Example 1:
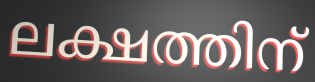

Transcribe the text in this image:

ലക്ഷത്തിന്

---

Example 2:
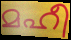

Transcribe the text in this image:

മഹീ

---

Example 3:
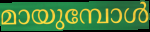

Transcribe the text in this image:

മായുമ്പോൾ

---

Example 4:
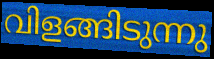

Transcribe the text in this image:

വിളങ്ങിടുന്നു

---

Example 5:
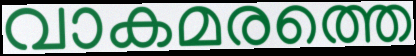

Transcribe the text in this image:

വാകമരത്തെ